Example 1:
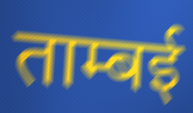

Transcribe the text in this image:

ताम्बई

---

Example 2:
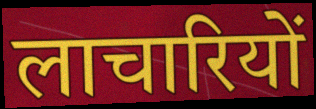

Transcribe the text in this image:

लाचारियों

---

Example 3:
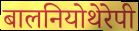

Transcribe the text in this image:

बालनियोथेरेपी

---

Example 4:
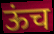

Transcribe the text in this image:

ऊंच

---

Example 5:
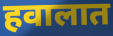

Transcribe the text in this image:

हवालात